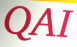
QAI